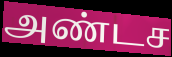
அண்டச